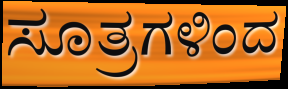
ಸೂತ್ರಗಳಿಂದ